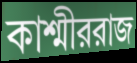
কাশ্মীররাজ